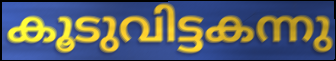
കൂടുവിട്ടകന്നു